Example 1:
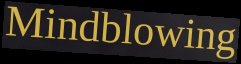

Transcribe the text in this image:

Mindblowing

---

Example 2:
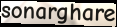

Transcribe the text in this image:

sonarghare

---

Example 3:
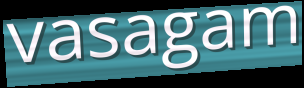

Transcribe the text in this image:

vasagam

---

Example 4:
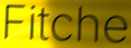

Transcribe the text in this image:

Fitche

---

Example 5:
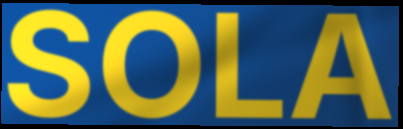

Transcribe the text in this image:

SOLA